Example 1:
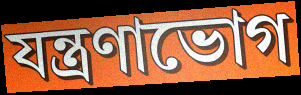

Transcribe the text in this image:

যন্ত্রণাভোগ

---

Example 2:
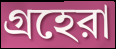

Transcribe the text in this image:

গ্রহেরা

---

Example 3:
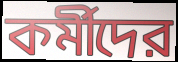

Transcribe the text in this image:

কর্মীদের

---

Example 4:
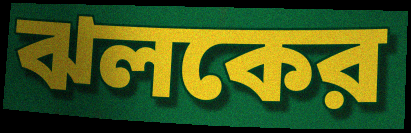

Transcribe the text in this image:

ঝলকের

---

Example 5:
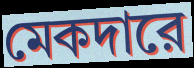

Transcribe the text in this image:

মেকদারে